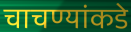
चाचण्यांकडे